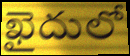
ఖైదులో